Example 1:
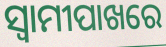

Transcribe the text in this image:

ସ୍ୱାମୀପାଖରେ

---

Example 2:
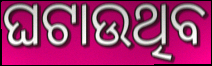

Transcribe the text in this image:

ଘଟାଉଥିବ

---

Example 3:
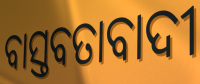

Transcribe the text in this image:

ବାସ୍ତବତାବାଦୀ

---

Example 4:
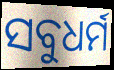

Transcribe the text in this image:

ସବୁଧର୍ମ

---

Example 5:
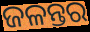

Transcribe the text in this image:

ଜଳନ୍ତର